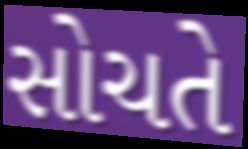
સોચતે